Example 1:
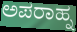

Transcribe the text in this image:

ಅಪರಾಹ್ನ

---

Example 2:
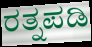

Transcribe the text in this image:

ರತ್ನಪಡಿ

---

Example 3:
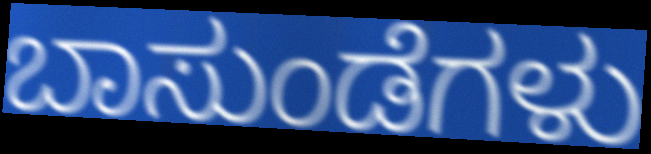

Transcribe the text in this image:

ಬಾಸುಂಡೆಗಳು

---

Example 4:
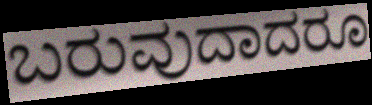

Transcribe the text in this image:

ಬರುವುದಾದರೂ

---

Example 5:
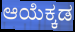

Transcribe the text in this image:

ಆಯೆಕ್ಕಡ